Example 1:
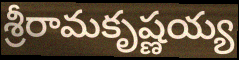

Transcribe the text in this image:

శ్రీరామకృష్ణయ్య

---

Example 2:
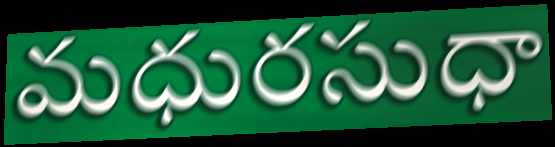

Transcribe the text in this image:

మధురసుధా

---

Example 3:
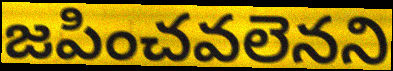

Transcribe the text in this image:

జపించవలెనని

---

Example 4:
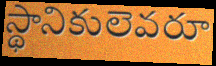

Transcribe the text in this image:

స్థానికులెవరూ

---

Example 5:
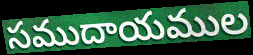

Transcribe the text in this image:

సముదాయముల